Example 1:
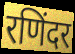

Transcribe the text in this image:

रणिंदर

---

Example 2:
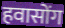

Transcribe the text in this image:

हवासोंग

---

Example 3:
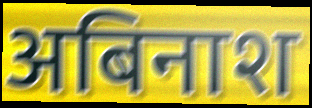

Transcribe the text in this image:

अबिनाश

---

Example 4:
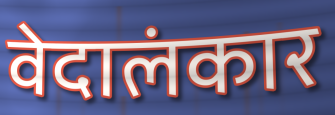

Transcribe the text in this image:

वेदालंकार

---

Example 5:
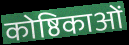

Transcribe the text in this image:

कोष्ठिकाओं